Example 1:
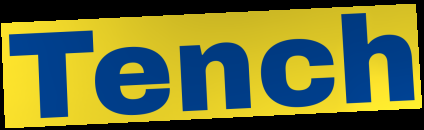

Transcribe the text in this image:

Tench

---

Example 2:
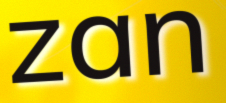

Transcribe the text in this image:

zan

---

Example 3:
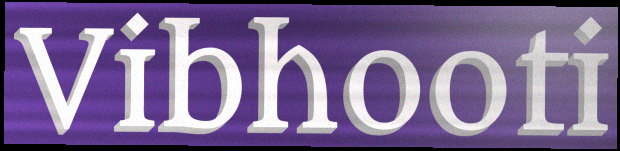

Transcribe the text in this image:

Vibhooti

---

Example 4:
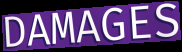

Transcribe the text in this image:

DAMAGES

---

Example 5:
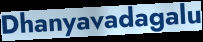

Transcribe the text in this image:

Dhanyavadagalu